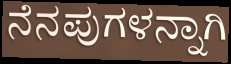
ನೆನಪುಗಳನ್ನಾಗಿ